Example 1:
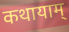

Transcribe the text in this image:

कथायाम्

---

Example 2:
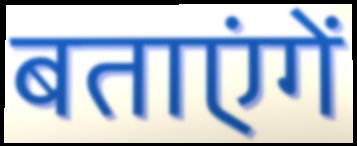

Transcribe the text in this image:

बताएंगें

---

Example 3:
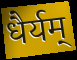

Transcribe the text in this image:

धैर्यम्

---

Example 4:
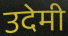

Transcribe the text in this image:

उदेमी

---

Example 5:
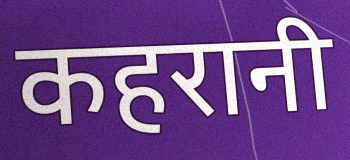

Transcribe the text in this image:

कहरानी